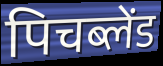
पिचब्लेंड